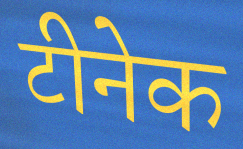
टीनेक